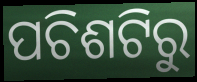
ପଚିଶଟିରୁ